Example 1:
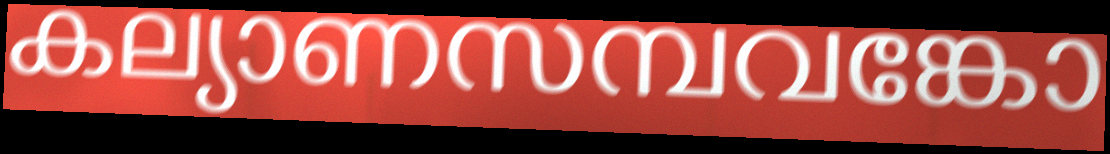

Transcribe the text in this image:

കല്യാണസമ്പവങ്കോ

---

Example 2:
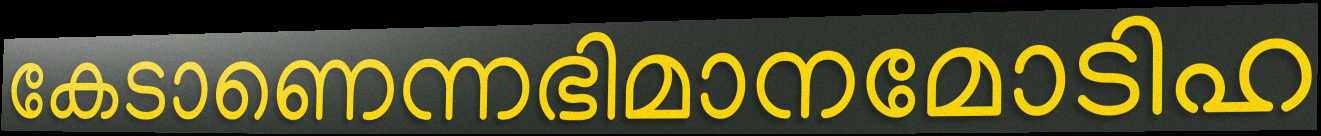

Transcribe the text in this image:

കേടാണെന്നഭിമാനമോടിഹ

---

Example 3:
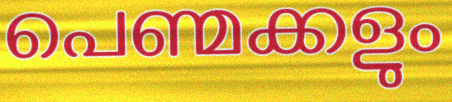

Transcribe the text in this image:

പെണ്മക്കളും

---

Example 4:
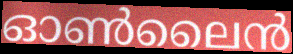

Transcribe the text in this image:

ഓൺലൈൻ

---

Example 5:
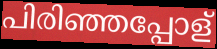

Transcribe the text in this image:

പിരിഞ്ഞപ്പോള്